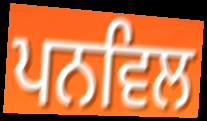
ਪਨਵਿਲ